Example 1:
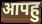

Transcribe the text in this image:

आपहु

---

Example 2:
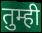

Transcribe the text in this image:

तुम्ही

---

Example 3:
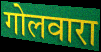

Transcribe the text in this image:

गोलवारा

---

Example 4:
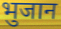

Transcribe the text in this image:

भुजान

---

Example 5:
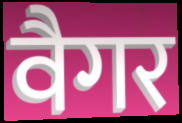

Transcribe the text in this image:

वैगर